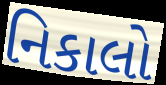
નિકાલો